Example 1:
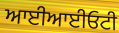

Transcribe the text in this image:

ਆਈਆਈਓਟੀ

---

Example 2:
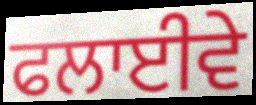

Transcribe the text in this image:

ਫਲਾਈਵੇ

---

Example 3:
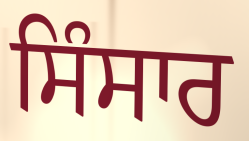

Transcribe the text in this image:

ਸਿੰਸਾਰ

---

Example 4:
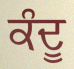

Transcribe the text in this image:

ਕੰਦੂ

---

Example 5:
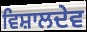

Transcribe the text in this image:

ਵਿਸ਼ਾਲਦੇਵ